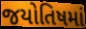
જયોતિષમાં